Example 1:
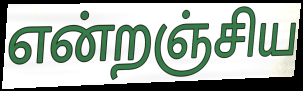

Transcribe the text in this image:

என்றஞ்சிய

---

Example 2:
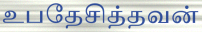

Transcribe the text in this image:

உபதேசித்தவன்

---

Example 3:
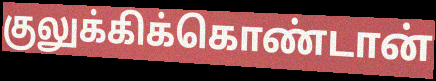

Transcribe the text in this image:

குலுக்கிக்கொண்டான்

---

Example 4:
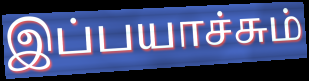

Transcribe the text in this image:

இப்பயாச்சும்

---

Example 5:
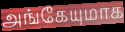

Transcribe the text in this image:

அங்கேயுமாக